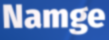
Namge